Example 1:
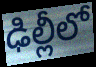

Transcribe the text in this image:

ఢిల్లీలో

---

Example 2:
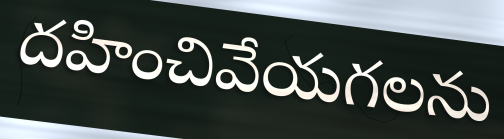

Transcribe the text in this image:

దహించివేయగలను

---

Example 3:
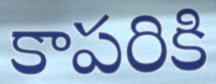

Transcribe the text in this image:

కాపరికి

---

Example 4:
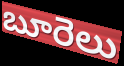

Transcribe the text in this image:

బూరెలు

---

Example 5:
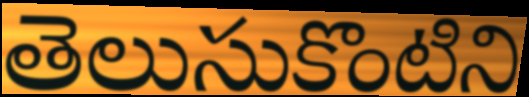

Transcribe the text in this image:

తెలుసుకొంటిని